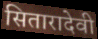
सितारादेवी